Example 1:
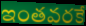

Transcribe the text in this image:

ఇంతవరకే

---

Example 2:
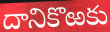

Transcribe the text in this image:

దానికొఱకు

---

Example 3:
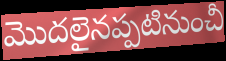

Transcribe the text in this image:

మొదలైనప్పటినుంచీ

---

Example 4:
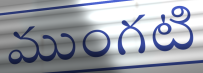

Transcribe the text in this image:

ముంగటి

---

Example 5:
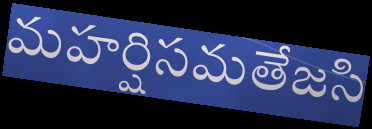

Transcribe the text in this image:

మహర్షిసమతేజసి